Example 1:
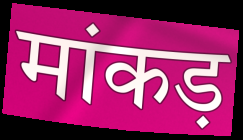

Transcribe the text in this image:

मांकड़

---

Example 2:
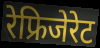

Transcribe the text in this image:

रेफ्रिजेरेट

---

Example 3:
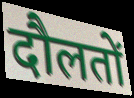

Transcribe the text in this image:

दौलतों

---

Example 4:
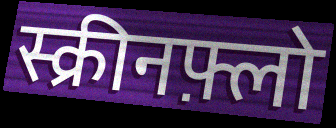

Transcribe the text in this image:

स्क्रीनफ़्लो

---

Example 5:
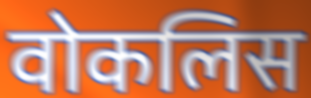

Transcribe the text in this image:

वोकलिस